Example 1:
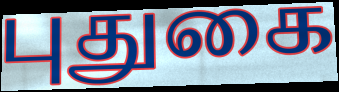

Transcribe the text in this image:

புதுகை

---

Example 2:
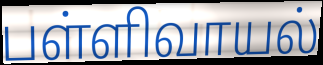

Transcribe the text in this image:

பள்ளிவாயல்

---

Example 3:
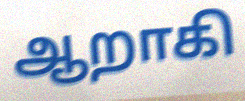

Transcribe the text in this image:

ஆறாகி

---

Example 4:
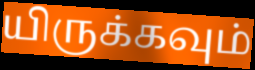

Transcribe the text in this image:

யிருக்கவும்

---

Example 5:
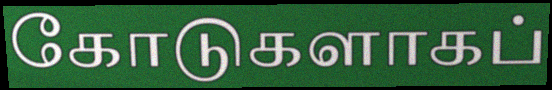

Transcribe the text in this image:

கோடுகளாகப்